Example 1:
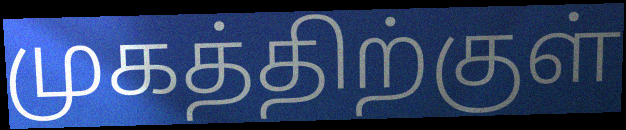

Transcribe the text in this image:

முகத்திற்குள்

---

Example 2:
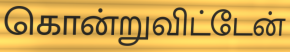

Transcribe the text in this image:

கொன்றுவிட்டேன்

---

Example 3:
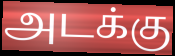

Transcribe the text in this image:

அடக்கு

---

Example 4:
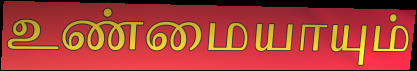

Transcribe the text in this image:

உண்மையாயும்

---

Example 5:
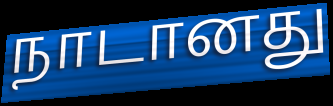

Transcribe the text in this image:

நாடானது